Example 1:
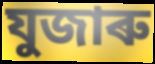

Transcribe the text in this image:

যুজাৰু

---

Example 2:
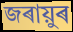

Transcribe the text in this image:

জৰায়ুৰ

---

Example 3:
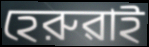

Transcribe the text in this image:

হেৰুৱাই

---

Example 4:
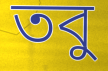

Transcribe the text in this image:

তবু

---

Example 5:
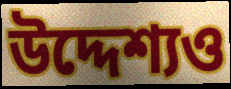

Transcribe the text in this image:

উদ্দেশ্যও